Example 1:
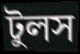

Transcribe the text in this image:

টুলস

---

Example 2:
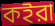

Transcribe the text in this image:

কইরা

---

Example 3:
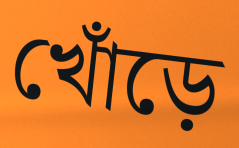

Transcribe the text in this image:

খোঁড়ে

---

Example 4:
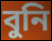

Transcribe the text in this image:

বুনি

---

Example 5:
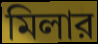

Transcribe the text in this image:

মিলার